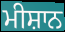
ਮੀਸ਼ਾਨ